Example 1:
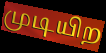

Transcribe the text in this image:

முடியிற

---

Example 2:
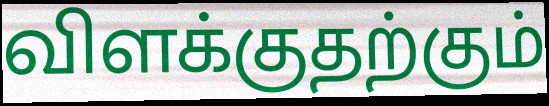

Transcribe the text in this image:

விளக்குதற்கும்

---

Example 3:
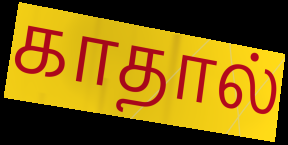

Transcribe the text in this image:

காதால்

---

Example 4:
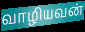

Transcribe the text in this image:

வாழியவன்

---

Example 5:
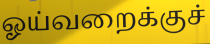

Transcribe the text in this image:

ஓய்வறைக்குச்